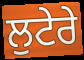
ਲੁਟੇਰੇ